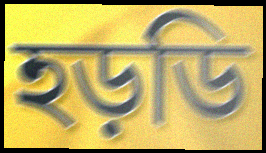
হড়ডি